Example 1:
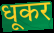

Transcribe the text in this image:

धूकर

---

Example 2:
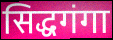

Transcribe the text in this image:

सिद्धगंगा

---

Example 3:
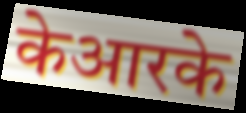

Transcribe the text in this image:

केआरके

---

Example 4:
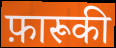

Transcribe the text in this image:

फ़ारूकी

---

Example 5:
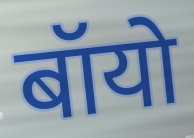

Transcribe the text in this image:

बॉयो